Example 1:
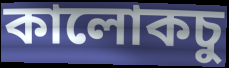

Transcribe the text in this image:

কালোকচু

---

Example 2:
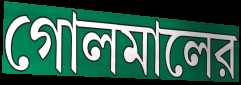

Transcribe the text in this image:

গোলমালের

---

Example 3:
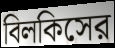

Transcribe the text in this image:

বিলকিসের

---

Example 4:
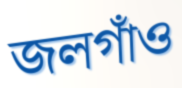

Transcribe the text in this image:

জলগাঁও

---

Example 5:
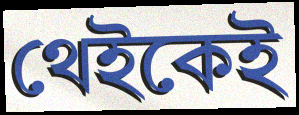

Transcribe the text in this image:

থেইকেই